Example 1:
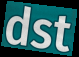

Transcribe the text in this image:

dst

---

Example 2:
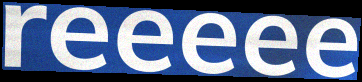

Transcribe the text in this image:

reeeee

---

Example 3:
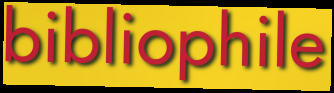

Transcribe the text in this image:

bibliophile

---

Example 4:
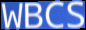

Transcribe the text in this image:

WBCS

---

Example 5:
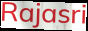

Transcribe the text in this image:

Rajasri